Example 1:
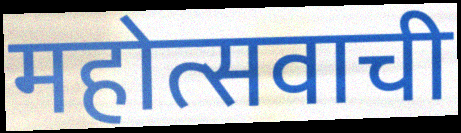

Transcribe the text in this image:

महोत्सवाची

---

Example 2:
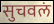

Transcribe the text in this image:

सुचवलं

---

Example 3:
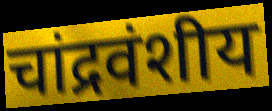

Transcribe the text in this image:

चांद्रवंशीय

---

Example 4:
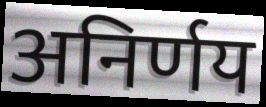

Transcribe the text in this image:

अनिर्णय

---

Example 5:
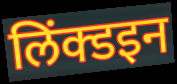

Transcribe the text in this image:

लिंक्डइन